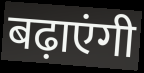
बढ़ाएंगी